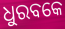
ଧୁରବକେ